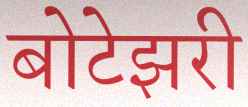
बोटेझरी